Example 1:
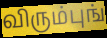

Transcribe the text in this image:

விரும்புங்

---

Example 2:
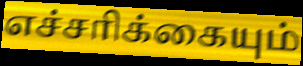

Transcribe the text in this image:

எச்சரிக்கையும்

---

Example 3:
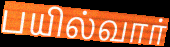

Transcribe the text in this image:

பயில்வார்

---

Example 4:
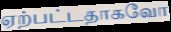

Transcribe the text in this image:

ஏற்பட்டதாகவோ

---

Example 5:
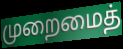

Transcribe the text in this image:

முறைமைத்